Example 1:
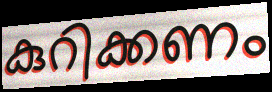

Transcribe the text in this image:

കുറിക്കണം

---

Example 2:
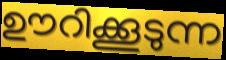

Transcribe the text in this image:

ഊറിക്കൂടുന്ന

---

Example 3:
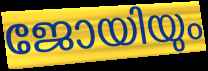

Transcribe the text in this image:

ജോയിയും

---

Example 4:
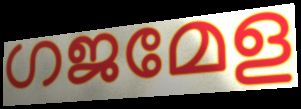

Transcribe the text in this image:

ഗജമേള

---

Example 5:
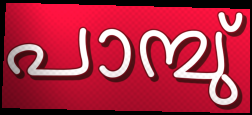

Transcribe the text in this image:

പാമ്പു്